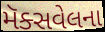
મૅક્સવેલના